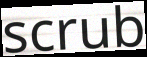
scrub